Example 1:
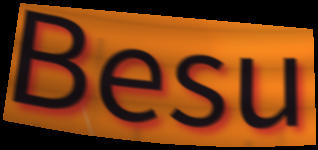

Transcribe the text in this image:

Besu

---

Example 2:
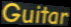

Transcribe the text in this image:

Guitar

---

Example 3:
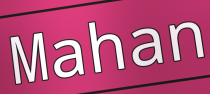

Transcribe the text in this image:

Mahan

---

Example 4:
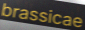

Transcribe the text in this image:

brassicae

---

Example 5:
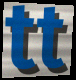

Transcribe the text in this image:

tt